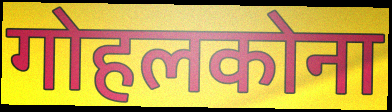
गोहलकोना